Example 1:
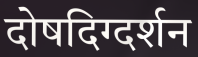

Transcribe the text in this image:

दोषदिग्दर्शन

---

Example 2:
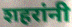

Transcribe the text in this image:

शहरांनी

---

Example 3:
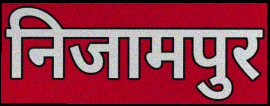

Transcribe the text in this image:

निजामपुर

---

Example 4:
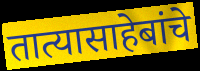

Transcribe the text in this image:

तात्यासाहेबांचे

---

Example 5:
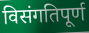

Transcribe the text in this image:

विसंगतिपूर्ण